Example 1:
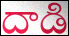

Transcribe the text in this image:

దాడి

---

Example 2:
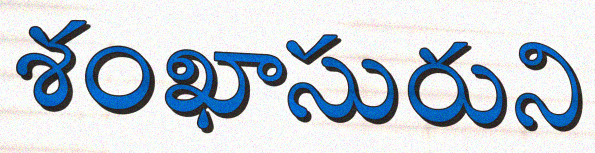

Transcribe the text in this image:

శంఖాసురుని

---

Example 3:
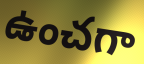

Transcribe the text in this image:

ఉంచగా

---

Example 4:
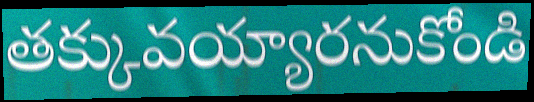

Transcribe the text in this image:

తక్కువయ్యారనుకోండి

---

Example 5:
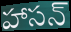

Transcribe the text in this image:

హాసన్